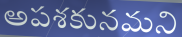
అపశకునమని